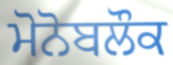
ਮੋਨੋਬਲੌਕ